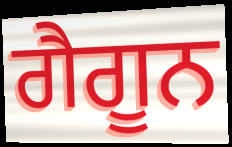
ਗੈਗੂਨ